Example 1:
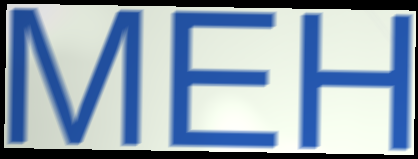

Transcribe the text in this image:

MEH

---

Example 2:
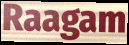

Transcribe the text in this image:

Raagam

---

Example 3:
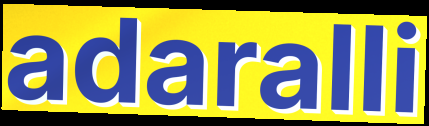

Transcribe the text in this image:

adaralli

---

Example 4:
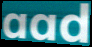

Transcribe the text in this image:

aad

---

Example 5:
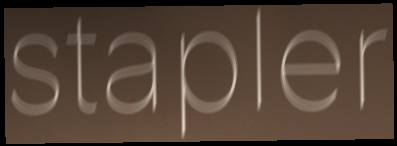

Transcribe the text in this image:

stapler